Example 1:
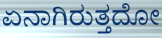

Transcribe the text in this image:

ಏನಾಗಿರುತ್ತದೋ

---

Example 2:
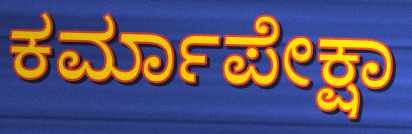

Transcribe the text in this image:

ಕರ್ಮಾಪೇಕ್ಷಾ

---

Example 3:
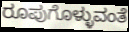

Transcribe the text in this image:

ರೂಪುಗೊಳ್ಳುವಂತೆ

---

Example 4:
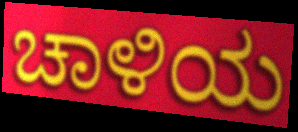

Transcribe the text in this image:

ಚಾಳಿಯ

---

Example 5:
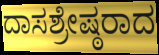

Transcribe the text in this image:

ದಾಸಶ್ರೇಷ್ಠರಾದ